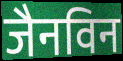
जैनविन